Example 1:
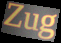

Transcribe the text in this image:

Zug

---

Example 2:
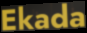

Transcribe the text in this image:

Ekada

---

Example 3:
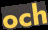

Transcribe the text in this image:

och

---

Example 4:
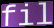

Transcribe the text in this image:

fil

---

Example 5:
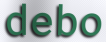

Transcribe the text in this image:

debo